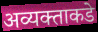
अव्यक्ताकडे